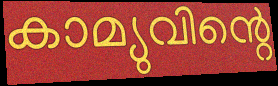
കാമ്യുവിന്റെ